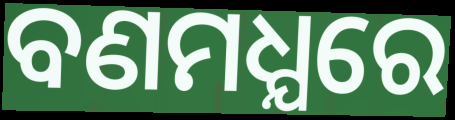
ବଣମଧ୍ଯରେ